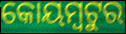
କୋୟମ୍ବଟୁର